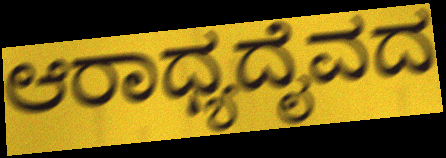
ಆರಾಧ್ಯದೈವದ